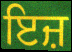
ਇਜ਼